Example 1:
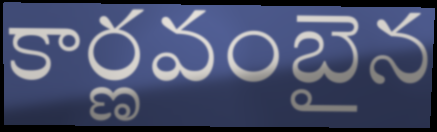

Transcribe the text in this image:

కార్ణవంబైన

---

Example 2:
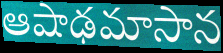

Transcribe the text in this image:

ఆషాఢమాసాన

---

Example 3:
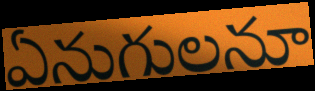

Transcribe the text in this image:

ఏనుగులనూ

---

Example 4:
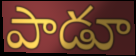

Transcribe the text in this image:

పాడూ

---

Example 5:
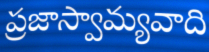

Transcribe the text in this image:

ప్రజాస్వామ్యవాది